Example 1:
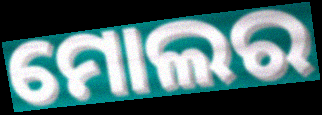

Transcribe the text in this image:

ମୋଲର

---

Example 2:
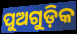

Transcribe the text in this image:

ପୁଅଗୁଡ଼ିକ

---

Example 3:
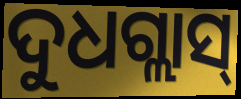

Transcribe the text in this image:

ଦୁଧଗ୍ଲାସ୍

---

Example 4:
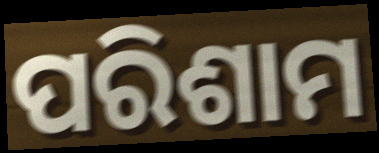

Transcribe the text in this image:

ପରିଶାମ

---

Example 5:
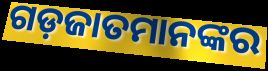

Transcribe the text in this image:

ଗଡ଼ଜାତମାନଙ୍କର